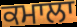
ਕਮਾਲਾ